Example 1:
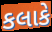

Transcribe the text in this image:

કલાકે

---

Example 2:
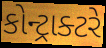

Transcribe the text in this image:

કોન્ટ્રાક્ટરે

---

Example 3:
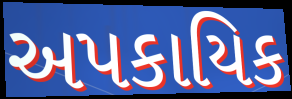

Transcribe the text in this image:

અપકાયિક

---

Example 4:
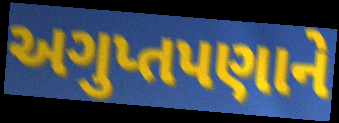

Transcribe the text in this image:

અગુપ્તપણાને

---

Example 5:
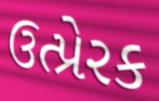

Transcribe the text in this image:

ઉત્પ્રેરક